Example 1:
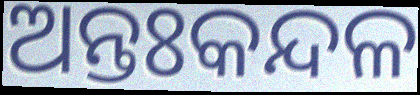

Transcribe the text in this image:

ଅନ୍ତଃକନ୍ଦଳ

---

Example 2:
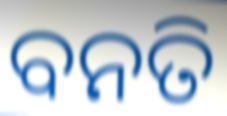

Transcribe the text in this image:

ବନତି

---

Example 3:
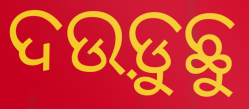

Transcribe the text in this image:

ଦଉଡ଼ୁଛୁ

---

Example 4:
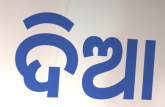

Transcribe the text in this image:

ଦିଆ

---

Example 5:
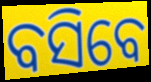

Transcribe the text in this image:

ବସିବେ